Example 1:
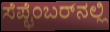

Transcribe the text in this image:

ಸೆಪ್ಟೆಂಬರ್‌ನಲ್ಲಿ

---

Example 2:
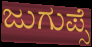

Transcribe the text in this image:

ಜುಗುಪ್ಸೆ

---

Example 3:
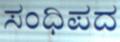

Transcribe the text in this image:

ಸಂಧಿಪದ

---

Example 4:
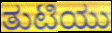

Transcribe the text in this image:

ತುಟಿಯು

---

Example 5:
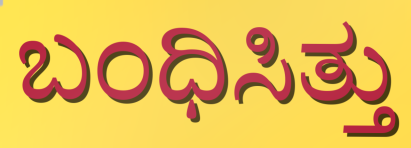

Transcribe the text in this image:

ಬಂಧಿಸಿತ್ತು